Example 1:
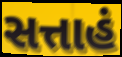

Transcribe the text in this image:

સત્તાહં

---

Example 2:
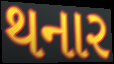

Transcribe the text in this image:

થનાર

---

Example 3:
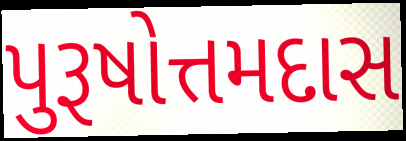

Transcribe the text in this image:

પુરૂષોત્તમદાસ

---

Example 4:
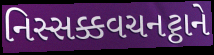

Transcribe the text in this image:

નિસ્સક્કવચનટ્ઠાને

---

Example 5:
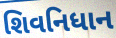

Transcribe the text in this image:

શિવનિધાન